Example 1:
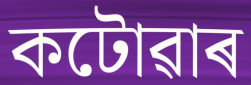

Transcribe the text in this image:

কটোৱাৰ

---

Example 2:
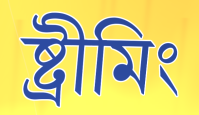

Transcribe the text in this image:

ষ্ট্ৰীমিং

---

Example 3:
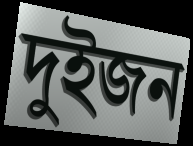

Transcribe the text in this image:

দুইজন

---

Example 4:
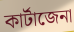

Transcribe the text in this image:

কাৰ্টাজেনা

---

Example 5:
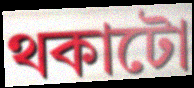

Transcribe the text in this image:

থকাটো